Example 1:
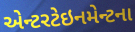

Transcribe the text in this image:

એન્ટરટેઇનમેન્ટના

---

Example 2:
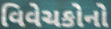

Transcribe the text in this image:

વિવેચકોનો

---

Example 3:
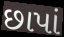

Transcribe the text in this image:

છાપાં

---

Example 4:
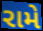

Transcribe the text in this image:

રામે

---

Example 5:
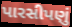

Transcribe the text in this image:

પારસીપણું